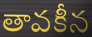
తావకీన